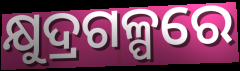
କ୍ଷୁଦ୍ରଗଳ୍ପରେ